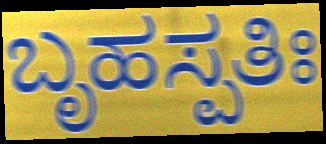
ಬೃಹಸ್ಪತಿಃ